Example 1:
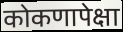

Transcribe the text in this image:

कोकणापेक्षा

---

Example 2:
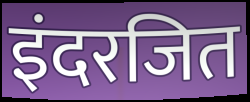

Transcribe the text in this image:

इंदरजित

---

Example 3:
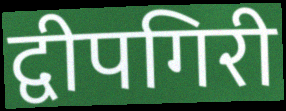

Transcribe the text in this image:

द्वीपगिरी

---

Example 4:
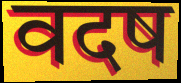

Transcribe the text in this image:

वदष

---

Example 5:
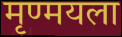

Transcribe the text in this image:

मृण्मयला